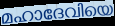
മഹാദേവിയെ